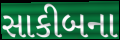
સાકીબના